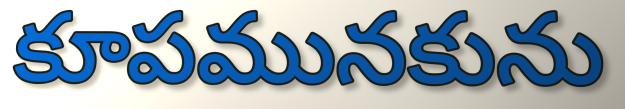
కూపమునకును